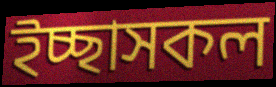
ইচ্ছাসকল